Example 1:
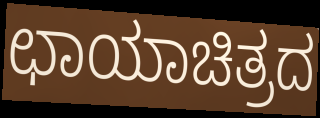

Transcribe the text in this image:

ಛಾಯಾಚಿತ್ರದ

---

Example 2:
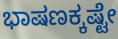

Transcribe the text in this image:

ಭಾಷಣಕ್ಕಷ್ಟೇ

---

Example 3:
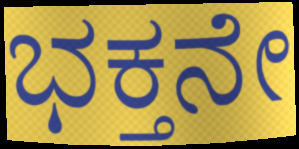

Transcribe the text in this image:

ಭಕ್ತನೇ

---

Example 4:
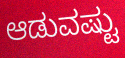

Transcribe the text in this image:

ಆಡುವಷ್ಟು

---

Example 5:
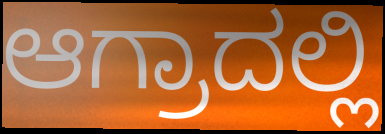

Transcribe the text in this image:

ಆಗ್ರಾದಲ್ಲಿ